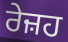
ਰੇਜ਼ਹ